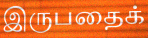
இருபதைக்